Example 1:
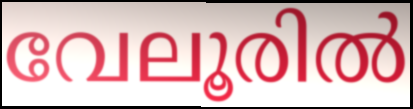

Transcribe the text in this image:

വേലൂരിൽ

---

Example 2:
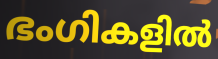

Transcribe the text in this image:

ഭംഗികളിൽ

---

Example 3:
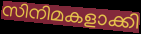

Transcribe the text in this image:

സിനിമകളാക്കി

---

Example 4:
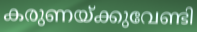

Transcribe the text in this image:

കരുണയ്ക്കുവേണ്ടി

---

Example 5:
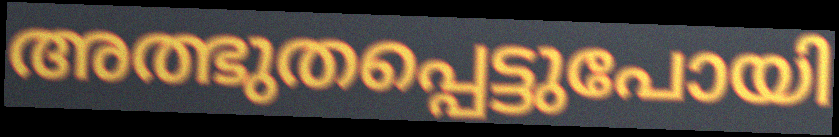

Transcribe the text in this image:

അത്ഭുതപ്പെട്ടുപോയി